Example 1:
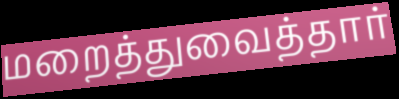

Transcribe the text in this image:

மறைத்துவைத்தார்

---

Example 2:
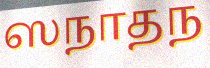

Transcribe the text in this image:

ஸநாதந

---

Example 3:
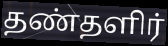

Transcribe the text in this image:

தண்தளிர்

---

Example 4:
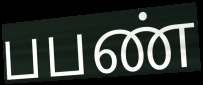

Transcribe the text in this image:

பபண்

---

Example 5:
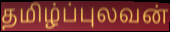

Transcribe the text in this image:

தமிழ்ப்புலவன்